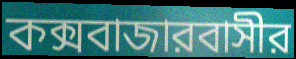
কক্সবাজারবাসীর